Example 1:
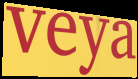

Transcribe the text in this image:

veya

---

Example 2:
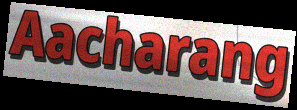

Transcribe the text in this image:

Aacharang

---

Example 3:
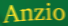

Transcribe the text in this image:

Anzio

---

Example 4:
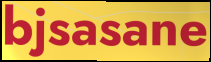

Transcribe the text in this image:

bjsasane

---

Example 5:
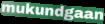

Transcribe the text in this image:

mukundgaan